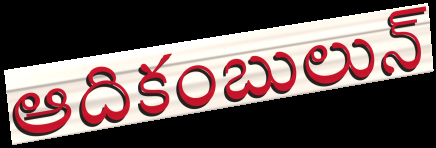
ఆదికంబులున్